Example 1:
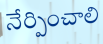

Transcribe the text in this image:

నేర్పించాలి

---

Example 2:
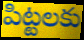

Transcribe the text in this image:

పిట్టలకు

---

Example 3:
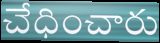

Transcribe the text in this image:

చేధించారు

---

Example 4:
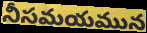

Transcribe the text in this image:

నీసమయమున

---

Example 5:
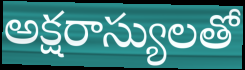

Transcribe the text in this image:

అక్షరాస్యులతో